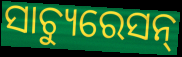
ସାଚ୍ୟୁରେସନ୍